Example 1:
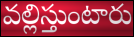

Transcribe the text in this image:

వల్లిస్తుంటారు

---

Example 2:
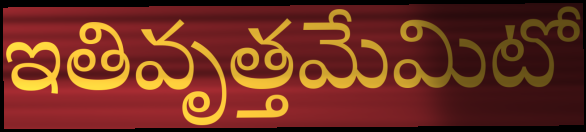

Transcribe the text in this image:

ఇతివృత్తమేమిటో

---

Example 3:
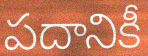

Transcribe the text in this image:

పదానికీ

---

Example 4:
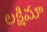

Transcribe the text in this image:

లక్షిమా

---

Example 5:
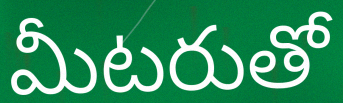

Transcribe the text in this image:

మీటరుతో